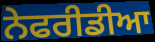
ਨੇਫਰੀਡੀਆ